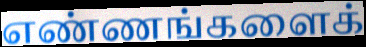
எண்ணங்களைக்